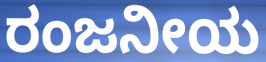
ರಂಜನೀಯ